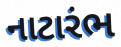
નાટારંભ